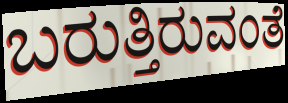
ಬರುತ್ತಿರುವಂತೆ